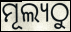
ମୂଲ୍ୟଠୁ